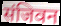
संजिवन